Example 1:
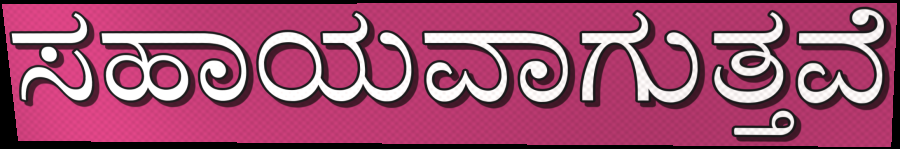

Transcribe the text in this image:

ಸಹಾಯವಾಗುತ್ತವೆ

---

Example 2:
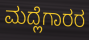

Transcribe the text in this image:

ಮದ್ಲೆಗಾರರ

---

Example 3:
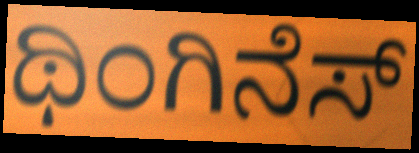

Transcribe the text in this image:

ಥಿಂಗಿನೆಸ್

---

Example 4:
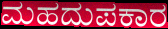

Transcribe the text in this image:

ಮಹದುಪಕಾರ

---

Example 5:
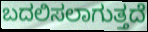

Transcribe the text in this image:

ಬದಲಿಸಲಾಗುತ್ತದೆ